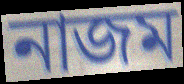
নাজম